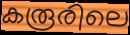
കരൂരിലെ